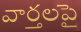
వార్తలపై